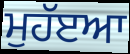
ਮੁਹੱੲਆ